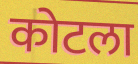
कोटला